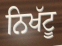
ਨਿਖੱਟੂ